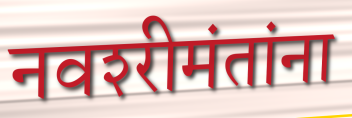
नवश्रीमंतांना